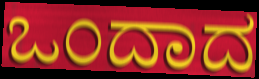
ಒಂದಾದ